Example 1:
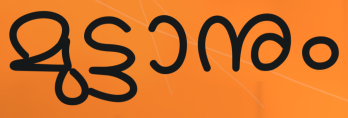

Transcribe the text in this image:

മുട്ടാനും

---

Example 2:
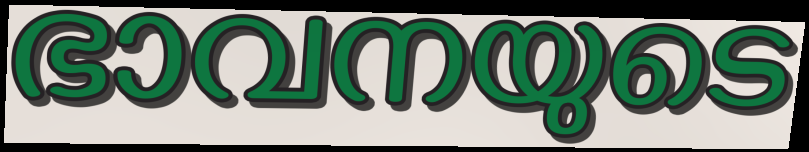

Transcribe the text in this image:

ഭാവനയുടെ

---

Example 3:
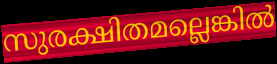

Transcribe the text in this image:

സുരക്ഷിതമല്ലെങ്കിൽ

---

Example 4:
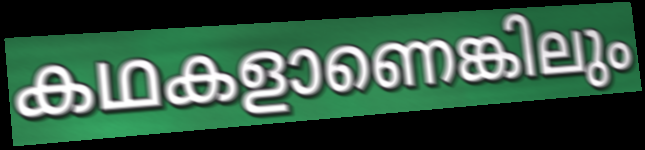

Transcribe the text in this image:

കഥകളാണെങ്കിലും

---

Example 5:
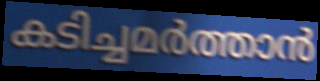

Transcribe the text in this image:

കടിച്ചമർത്താൻ